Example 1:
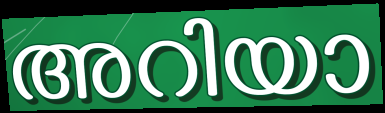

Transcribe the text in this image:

അറിയാ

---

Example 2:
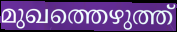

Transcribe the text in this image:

മുഖത്തെഴുത്ത്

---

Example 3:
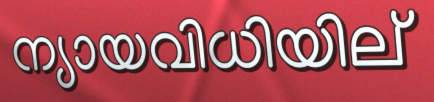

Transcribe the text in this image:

ന്യായവിധിയില്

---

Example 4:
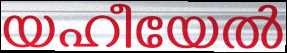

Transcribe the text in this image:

യഹീയേൽ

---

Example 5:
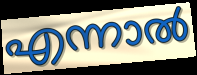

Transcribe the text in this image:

എന്നാൽ